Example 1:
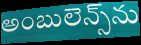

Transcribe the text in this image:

అంబులెన్స్‌ను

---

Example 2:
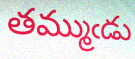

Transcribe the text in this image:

తమ్ముఁడు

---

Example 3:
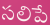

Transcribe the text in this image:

సలిపే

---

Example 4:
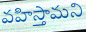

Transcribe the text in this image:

వహిస్తామని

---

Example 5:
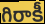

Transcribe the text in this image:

గిరాకీ